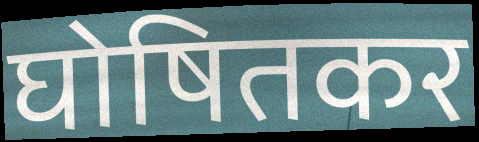
घोषितकर